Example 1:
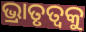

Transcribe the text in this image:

ଭ୍ରାତୃତ୍ୱକୁ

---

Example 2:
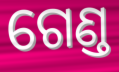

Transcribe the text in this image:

ଗେଣ୍ଡ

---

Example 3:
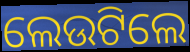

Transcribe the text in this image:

ଲେଉଟିଲେ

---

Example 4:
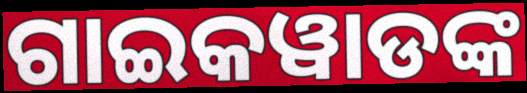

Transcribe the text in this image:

ଗାଇକୱାଡଙ୍କ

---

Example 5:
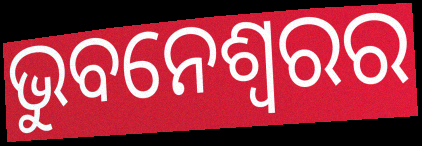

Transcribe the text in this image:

ଭୁବନେଶ୍ଵରର